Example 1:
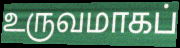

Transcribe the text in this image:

உருவமாகப்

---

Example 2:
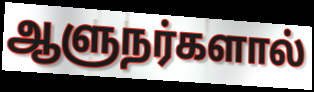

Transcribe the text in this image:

ஆளுநர்களால்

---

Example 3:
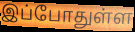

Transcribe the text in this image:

இப்போதுள்ள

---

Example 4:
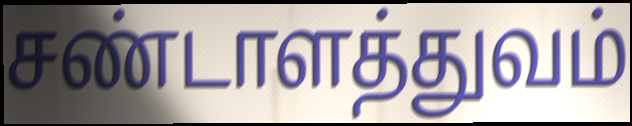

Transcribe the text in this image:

சண்டாளத்துவம்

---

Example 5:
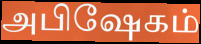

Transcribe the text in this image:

அபிஷேகம்